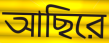
আছিরে